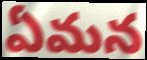
ఏమన